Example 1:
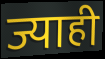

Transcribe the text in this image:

ज्याही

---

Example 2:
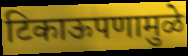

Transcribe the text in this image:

टिकाऊपणामुळे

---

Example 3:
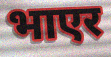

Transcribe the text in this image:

भाएर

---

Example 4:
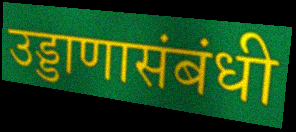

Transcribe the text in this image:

उड्डाणासंबंधी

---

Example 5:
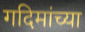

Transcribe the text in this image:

गदिमांच्या